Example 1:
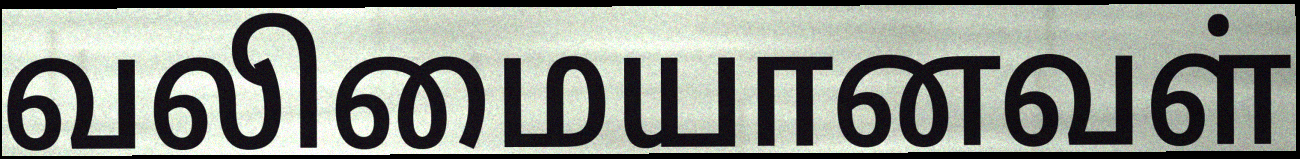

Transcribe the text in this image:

வலிமையானவள்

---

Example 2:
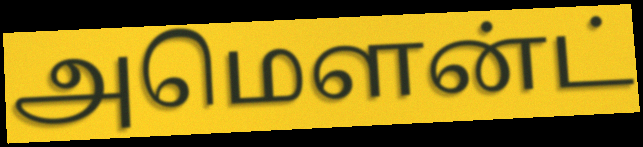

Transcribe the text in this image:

அமௌன்ட்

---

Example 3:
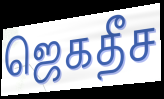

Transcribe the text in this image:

ஜெகதீச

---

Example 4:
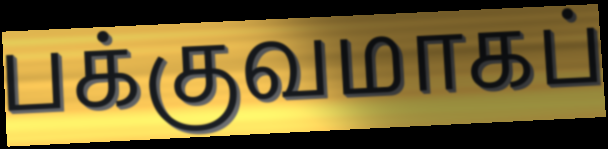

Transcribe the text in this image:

பக்குவமாகப்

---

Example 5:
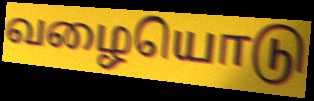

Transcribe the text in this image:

வழையொடு